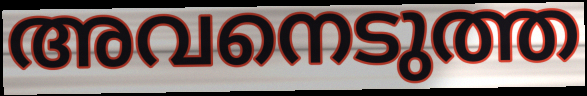
അവനെടുത്ത